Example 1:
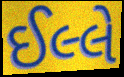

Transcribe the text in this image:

ઈલ્લે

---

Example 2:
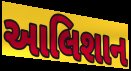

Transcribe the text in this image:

આલિશાન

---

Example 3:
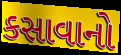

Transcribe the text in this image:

કસાવાનો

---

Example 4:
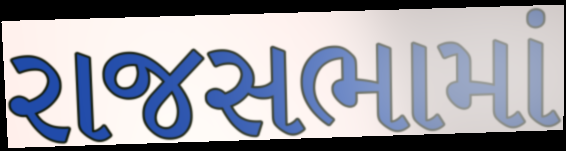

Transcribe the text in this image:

રાજસભામાં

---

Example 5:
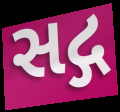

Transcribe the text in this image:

સદ્ગ